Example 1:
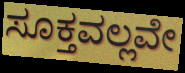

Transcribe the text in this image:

ಸೂಕ್ತವಲ್ಲವೇ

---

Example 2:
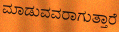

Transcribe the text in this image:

ಮಾಡುವವರಾಗುತ್ತಾರೆ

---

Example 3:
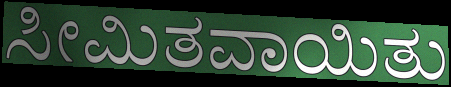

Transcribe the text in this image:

ಸೀಮಿತವಾಯಿತು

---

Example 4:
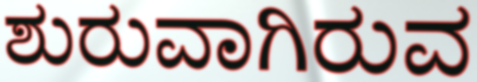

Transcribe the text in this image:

ಶುರುವಾಗಿರುವ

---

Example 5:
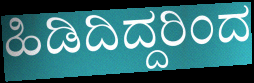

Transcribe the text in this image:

ಹಿಡಿದಿದ್ದರಿಂದ